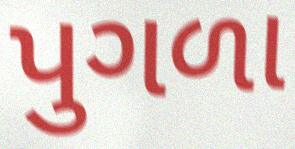
પુગળા